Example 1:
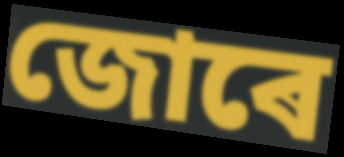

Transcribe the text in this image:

জোৰে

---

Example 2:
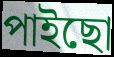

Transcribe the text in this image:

পাইছো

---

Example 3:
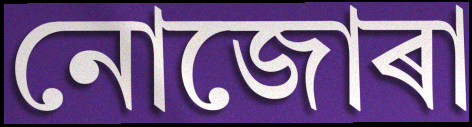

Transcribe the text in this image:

নোজোৰা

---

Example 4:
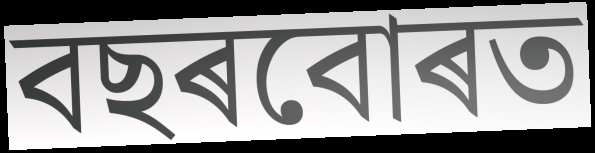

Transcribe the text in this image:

বছৰবোৰত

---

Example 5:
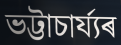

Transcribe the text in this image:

ভট্টাচাৰ্য্যৰ